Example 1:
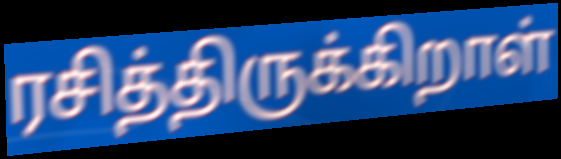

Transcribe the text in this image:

ரசித்திருக்கிறாள்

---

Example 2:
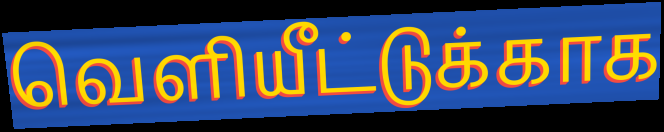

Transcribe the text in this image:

வெளியீட்டுக்காக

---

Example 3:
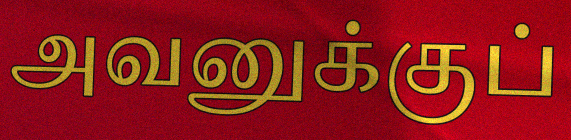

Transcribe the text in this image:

அவனுக்குப்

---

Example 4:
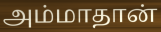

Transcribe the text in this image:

அம்மாதான்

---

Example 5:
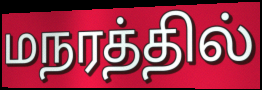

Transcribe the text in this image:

மநரத்தில்